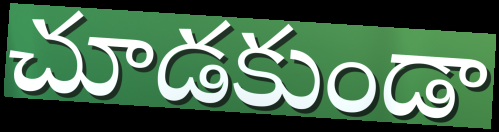
చూడకుండా